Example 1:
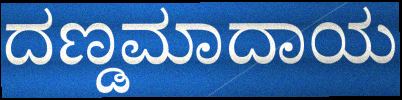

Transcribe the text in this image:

ದಣ್ಡಮಾದಾಯ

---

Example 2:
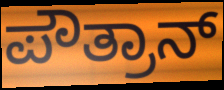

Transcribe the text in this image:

ಪೌತ್ರಾನ್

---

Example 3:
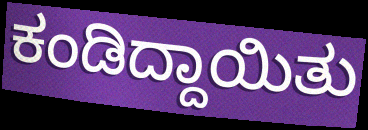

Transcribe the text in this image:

ಕಂಡಿದ್ದಾಯಿತು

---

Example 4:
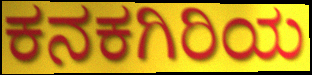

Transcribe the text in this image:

ಕನಕಗಿರಿಯ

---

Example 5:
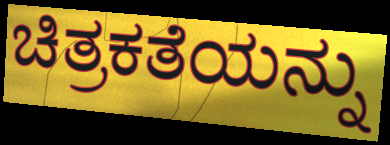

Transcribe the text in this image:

ಚಿತ್ರಕತೆಯನ್ನು